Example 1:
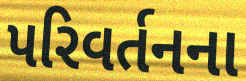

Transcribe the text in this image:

પરિવર્તનના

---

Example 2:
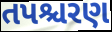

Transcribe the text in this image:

તપશ્ચરણ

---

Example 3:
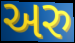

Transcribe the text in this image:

અરુ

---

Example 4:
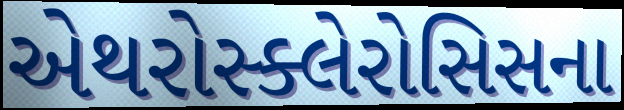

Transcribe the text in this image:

એથરોસ્ક્લેરોસિસના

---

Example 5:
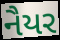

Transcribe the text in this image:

નૈયર